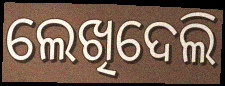
ଲେଖିଦେଲି